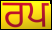
ਰਪ